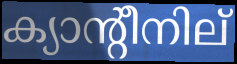
ക്യാന്റീനില്